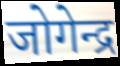
जोगेन्द्र